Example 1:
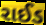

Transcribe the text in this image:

રાઈડ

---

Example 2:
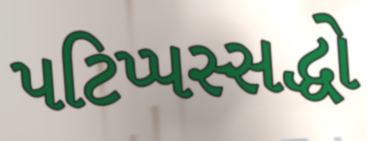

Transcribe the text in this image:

પટિપ્પસ્સદ્ધો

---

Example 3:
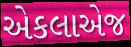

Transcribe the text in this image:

એકલાએજ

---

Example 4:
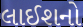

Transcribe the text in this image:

લાઈશનો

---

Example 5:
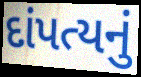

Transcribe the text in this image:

દાંપત્યનું